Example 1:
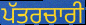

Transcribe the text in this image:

ਪੱਤਰਚਾਰੀ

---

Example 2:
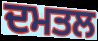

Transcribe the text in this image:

ਦਮਤਲ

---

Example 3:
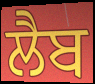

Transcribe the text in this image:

ਲੈਬ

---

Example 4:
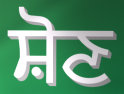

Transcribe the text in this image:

ਸ਼ੋਣ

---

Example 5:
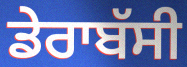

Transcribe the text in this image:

ਡੇਰਾਬੱਸੀ